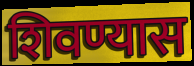
शिवण्यास